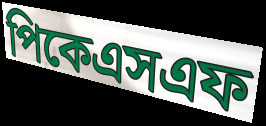
পিকেএসএফ